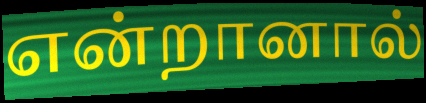
என்றானால்